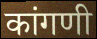
कांगणी